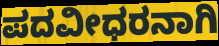
ಪದವೀಧರನಾಗಿ